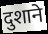
दुशाने